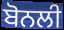
ਬੋਨਲੀ